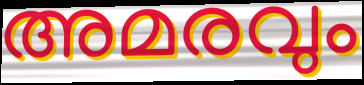
അമരവും